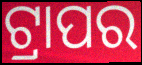
ଟ୍ରାପର